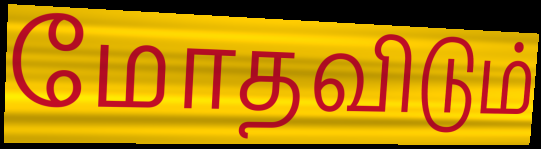
மோதவிடும்